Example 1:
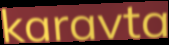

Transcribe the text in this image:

karavta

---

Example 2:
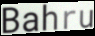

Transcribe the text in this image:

Bahru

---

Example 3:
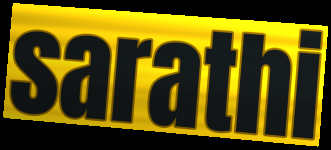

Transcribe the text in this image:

sarathi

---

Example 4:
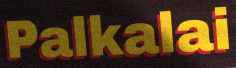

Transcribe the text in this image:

Palkalai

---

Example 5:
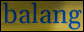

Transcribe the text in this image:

balang